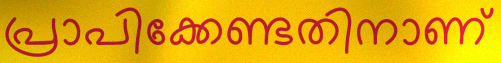
പ്രാപിക്കേണ്ടതിനാണ്